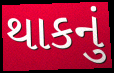
થાકનું